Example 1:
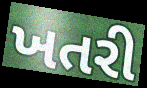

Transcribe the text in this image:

ખતરી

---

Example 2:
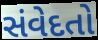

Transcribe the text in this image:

સંવેદતો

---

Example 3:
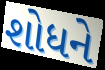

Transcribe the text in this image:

શોધને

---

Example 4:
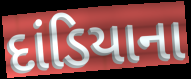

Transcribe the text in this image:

દાંડિયાના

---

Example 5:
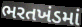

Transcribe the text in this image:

ભરતખંડમાં